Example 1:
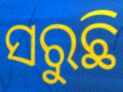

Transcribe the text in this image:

ସରୁଛି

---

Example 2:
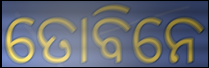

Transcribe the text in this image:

ତୋବିନେ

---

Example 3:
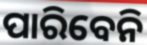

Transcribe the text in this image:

ପାରିବେନି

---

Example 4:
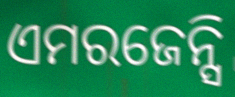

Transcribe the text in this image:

ଏମରଜେନ୍ସି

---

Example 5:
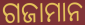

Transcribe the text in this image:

ଗଜାମାନ